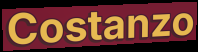
Costanzo